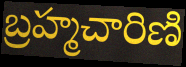
బ్రహ్మచారిణి